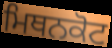
ਮਿਥਨਕੋਟ